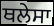
ਥਲੇਸਾ